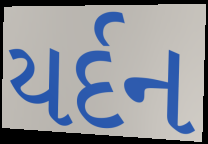
યર્દન